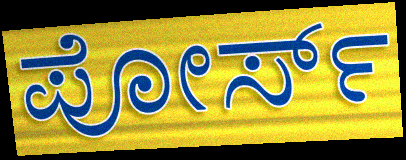
ಪೋರ್ಸ್